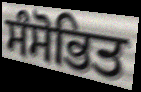
ਸੰਸੋਭਿਤ